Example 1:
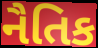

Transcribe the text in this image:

નૈતિક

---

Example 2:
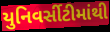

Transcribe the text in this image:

યુનિવર્સીટીમાંથી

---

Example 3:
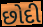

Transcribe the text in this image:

છોદી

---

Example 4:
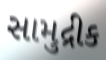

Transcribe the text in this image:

સામુદ્રીક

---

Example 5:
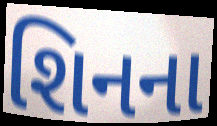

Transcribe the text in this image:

શિનના